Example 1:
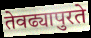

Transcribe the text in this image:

तेवढ्यापुरते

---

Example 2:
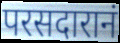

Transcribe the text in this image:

परसदारानं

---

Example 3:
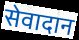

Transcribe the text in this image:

सेवादान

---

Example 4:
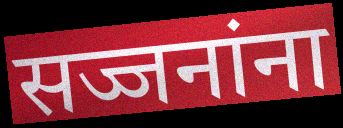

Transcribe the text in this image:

सज्जनांना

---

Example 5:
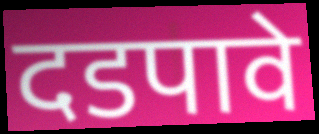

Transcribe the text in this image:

दडपावे